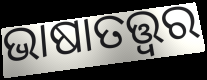
ଭାଷାତତ୍ତ୍ଵର